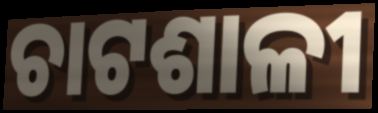
ଚାଟଶାଳୀ